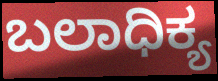
ಬಲಾಧಿಕ್ಯ